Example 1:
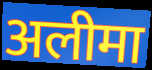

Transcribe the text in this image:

अलीमा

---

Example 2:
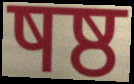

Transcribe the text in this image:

षष्ठ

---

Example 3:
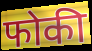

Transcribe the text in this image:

फोकी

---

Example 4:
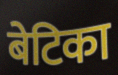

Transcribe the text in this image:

बेटिका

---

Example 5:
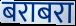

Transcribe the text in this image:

बराबरा